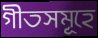
গীতসমূহে